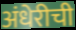
अंधेरीची